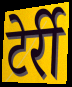
टेर्री